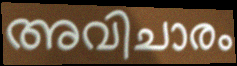
അവിചാരം